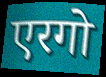
एरगो